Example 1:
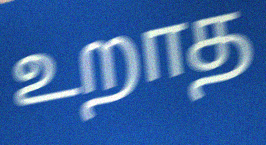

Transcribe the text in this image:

உறாத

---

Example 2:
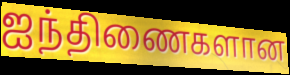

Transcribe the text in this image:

ஐந்திணைகளான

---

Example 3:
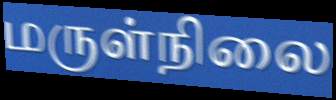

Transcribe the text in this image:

மருள்நிலை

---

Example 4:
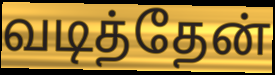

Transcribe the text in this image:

வடித்தேன்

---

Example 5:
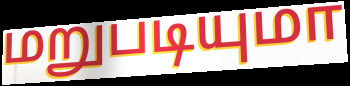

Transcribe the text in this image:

மறுபடியுமா